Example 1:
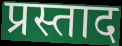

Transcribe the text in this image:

प्रस्ताद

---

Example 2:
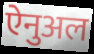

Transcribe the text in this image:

ऐनुअल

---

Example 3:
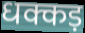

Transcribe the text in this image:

धक्कड़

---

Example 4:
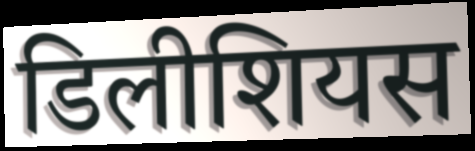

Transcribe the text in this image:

डिलीशियस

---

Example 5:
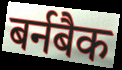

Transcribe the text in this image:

बर्नबैक